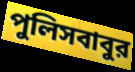
পুলিসবাবুর